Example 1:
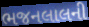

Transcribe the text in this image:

ભજનલાલની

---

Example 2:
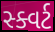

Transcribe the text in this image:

સ્ક્વર્ટ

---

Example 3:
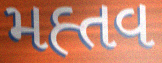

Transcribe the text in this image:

મહ્તવ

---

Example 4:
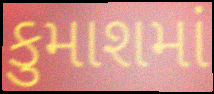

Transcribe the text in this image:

કુમાશમાં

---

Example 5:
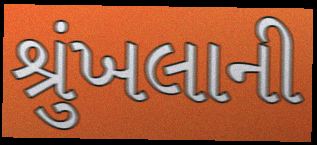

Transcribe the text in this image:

શ્રુંખલાની